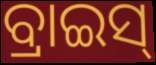
ବ୍ରାଇସ୍